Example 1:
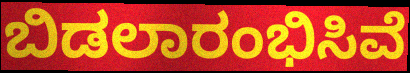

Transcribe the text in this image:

ಬಿಡಲಾರಂಭಿಸಿವೆ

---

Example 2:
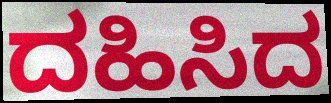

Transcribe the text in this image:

ದಹಿಸಿದ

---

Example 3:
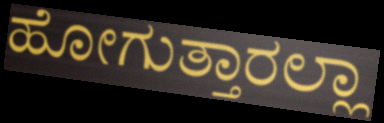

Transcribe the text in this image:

ಹೋಗುತ್ತಾರಲ್ಲಾ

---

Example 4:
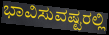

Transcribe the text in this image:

ಭಾವಿಸುವಷ್ಟರಲ್ಲಿ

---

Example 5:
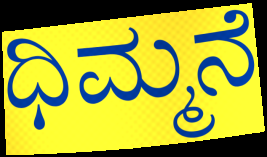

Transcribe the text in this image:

ಧಿಮ್ಮನೆ